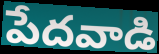
పేదవాడి